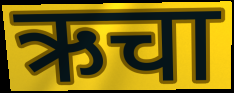
ऋचा